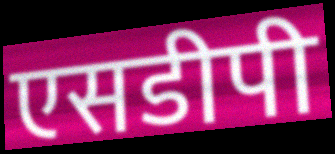
एसडीपी